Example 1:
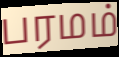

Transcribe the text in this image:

பரமம்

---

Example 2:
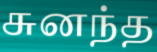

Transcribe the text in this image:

சுனந்த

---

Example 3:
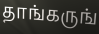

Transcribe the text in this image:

தாங்கருங்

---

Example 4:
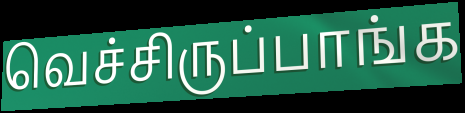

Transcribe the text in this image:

வெச்சிருப்பாங்க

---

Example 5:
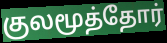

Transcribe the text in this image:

குலமூத்தோர்